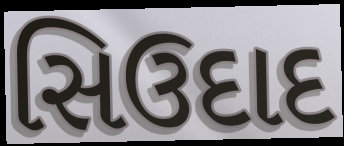
સિઉદાદ